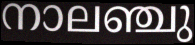
നാലഞ്ചു